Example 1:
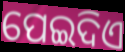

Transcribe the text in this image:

ପେଇଦିଏ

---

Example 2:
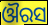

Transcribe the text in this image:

ଔରସ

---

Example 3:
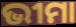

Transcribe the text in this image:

ଭୀମା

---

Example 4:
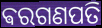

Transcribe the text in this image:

ଵରଗଣପତି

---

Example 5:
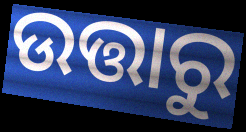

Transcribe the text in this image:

ଉତ୍ତାରୁ